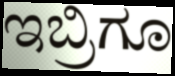
ಇಬ್ರಿಗೂ